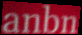
anbn